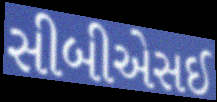
સીબીએસઈ